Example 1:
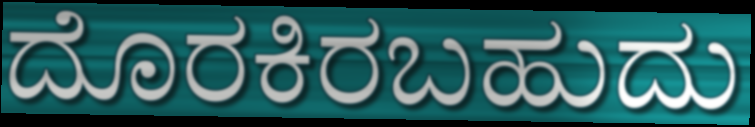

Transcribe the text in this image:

ದೊರಕಿರಬಹುದು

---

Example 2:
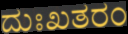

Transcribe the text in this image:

ದುಃಖತರಂ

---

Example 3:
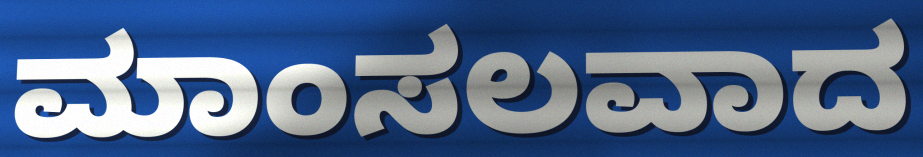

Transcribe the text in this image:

ಮಾಂಸಲವಾದ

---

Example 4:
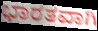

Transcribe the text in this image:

ಭಾರತವಾಗಿ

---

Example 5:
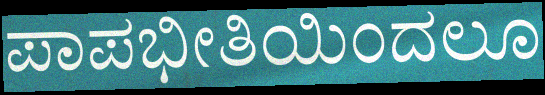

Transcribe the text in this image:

ಪಾಪಭೀತಿಯಿಂದಲೂ